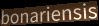
bonariensis